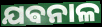
ଯଵନାଳ